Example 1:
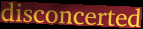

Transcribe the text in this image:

disconcerted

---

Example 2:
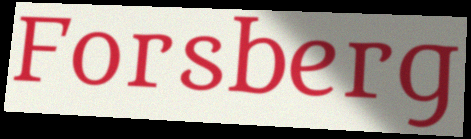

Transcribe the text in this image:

Forsberg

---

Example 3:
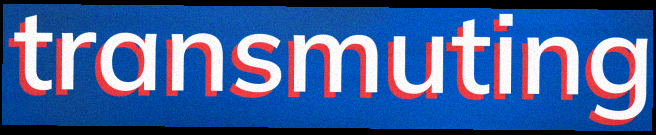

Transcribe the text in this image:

transmuting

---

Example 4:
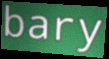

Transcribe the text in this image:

bary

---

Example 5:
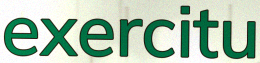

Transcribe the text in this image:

exercitu